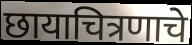
छायाचित्रणाचे